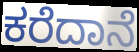
ಕರೆದಾನೆ